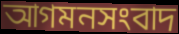
আগমনসংবাদ